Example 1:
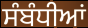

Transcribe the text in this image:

ਸੰਬੰਧੀਆਂ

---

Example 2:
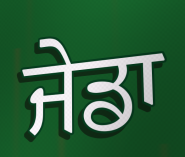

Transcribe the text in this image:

ਜੇਡਾ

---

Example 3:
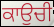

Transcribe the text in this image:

ਕਾਉਚੀ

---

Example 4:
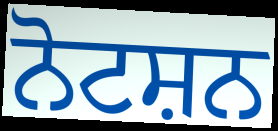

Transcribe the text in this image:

ਨੋਟਸ਼ਨ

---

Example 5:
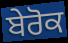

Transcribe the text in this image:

ਬੇਰੋਕ